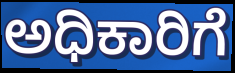
ಅಧಿಕಾರಿಗೆ